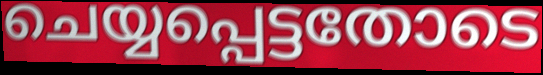
ചെയ്യപ്പെട്ടതോടെ